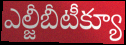
ఎల్జీబీటీక్యూ